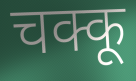
चक्कू